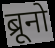
ब्रूनो